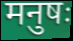
मनुषः